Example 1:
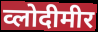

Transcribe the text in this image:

व्लोदीमीर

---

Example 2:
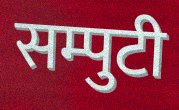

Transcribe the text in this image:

सम्पुटी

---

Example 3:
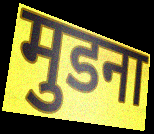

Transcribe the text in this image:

मुडना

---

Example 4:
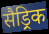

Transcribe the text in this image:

सैड्रिक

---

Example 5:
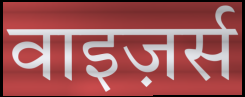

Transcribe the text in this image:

वाइज़र्स